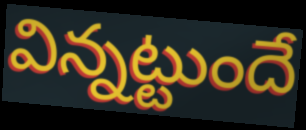
విన్నట్టుందే